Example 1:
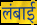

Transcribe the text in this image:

लंबाई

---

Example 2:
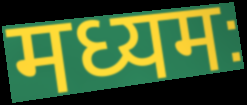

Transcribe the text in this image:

मध्यमः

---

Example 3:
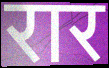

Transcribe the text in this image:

रार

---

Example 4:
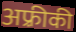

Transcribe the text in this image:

अफ़्रीकी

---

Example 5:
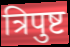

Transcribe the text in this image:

त्रिपुष्ट